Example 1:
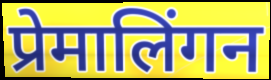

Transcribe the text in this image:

प्रेमालिंगन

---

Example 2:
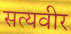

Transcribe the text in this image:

सत्यवीर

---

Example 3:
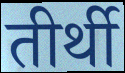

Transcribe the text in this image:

तीर्थी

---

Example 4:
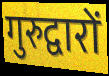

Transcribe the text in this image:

गुरुद्वारों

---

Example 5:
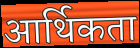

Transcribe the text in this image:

आर्थिकता